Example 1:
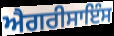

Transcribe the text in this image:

ਐਗਰੀਸਾਇੰਸ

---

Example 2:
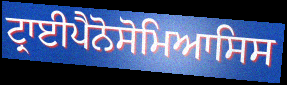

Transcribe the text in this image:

ਟ੍ਰਾਈਪੈਨੋਸੋਮਿਆਸਿਸ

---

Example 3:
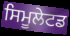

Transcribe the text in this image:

ਸਿਮੂਲੇਟਡ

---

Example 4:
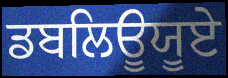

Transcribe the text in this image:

ਡਬਲਿਊਯੂਏ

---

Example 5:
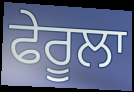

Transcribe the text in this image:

ਫੇਰੂਲਾ